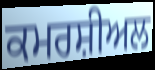
ਕਮਰਸ਼ੀਅਲ